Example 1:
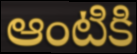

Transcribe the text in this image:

ఆంటికి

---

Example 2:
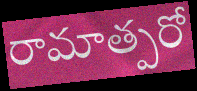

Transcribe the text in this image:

రామాత్పరో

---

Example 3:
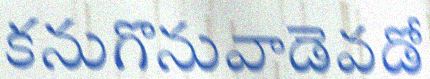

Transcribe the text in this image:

కనుగొనువాడెవడో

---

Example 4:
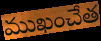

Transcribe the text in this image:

ముఖంచేత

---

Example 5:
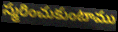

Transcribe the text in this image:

స్మరించుకుంటాము